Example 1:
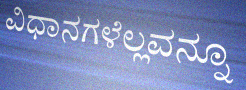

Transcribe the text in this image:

ವಿಧಾನಗಳೆಲ್ಲವನ್ನೂ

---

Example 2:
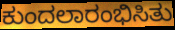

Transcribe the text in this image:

ಕುಂದಲಾರಂಭಿಸಿತು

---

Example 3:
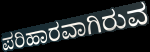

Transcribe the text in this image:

ಪರಿಹಾರವಾಗಿರುವ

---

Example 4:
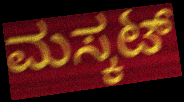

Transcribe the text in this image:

ಮಸ್ಕಟ್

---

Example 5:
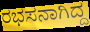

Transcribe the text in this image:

ರಭಸನಾಗಿದ್ದ